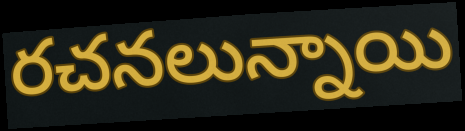
రచనలున్నాయి